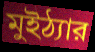
মুইঠ্যার